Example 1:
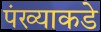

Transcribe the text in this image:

पंख्याकडे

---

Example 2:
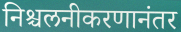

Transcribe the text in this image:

निश्चलनीकरणानंतर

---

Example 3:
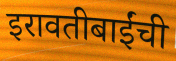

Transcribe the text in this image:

इरावतीबाईंची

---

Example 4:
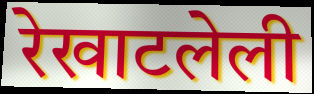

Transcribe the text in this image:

रेखाटलेली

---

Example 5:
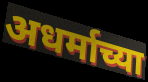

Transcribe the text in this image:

अधर्माच्या